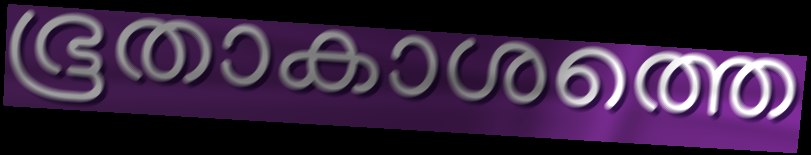
ഭൂതാകാശത്തെ